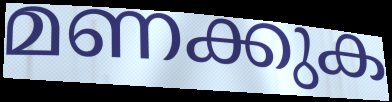
മണക്കുക